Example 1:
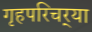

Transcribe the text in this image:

गृहपरिचर्या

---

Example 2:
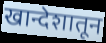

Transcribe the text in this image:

खान्देशातून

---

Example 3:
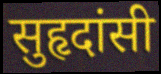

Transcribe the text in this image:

सुहृदांसी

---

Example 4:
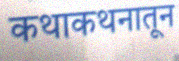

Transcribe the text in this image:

कथाकथनातून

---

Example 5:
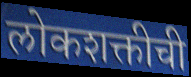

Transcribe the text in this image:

लोकशक्तीची